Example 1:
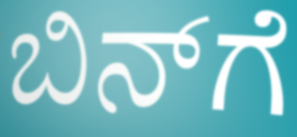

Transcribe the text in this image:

ಬಿನ್‌ಗೆ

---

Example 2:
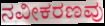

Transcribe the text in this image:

ನವೀಕರಣವು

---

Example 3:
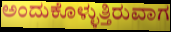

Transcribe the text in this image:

ಅಂದುಕೊಳ್ಳುತ್ತಿರುವಾಗ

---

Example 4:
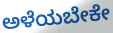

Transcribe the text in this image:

ಅಳೆಯಬೇಕೇ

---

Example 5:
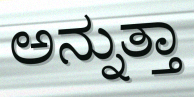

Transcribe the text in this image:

ಅನ್ನುತ್ತಾ